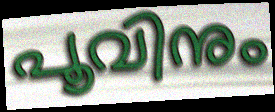
പൂവിനും